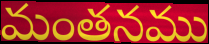
మంతనము